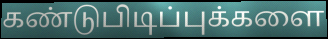
கண்டுபிடிப்புக்களை